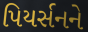
પિયર્સનને